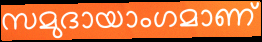
സമുദായാംഗമാണ്